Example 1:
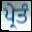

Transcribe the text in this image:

ਪ੍ਰੇਤੰ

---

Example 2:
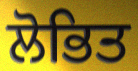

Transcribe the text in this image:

ਲੋਭਿਤ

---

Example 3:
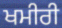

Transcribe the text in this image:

ਖਮੀਰੀ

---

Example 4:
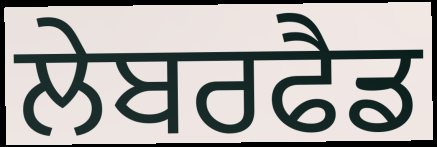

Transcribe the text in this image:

ਲੇਬਰਫੈਡ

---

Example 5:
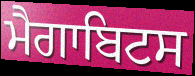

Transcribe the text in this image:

ਮੈਗਾਬਿਟਸ